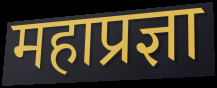
महाप्रज्ञा